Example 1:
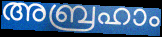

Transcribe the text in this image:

അബ്രഹാം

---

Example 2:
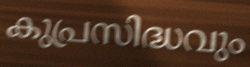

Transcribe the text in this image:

കുപ്രസിദ്ധവും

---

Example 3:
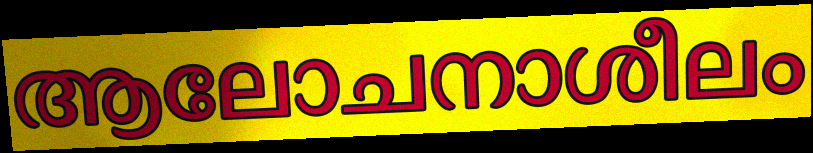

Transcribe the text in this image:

ആലോചനാശീലം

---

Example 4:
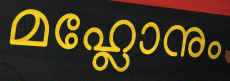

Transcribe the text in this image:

മഹ്ലോനും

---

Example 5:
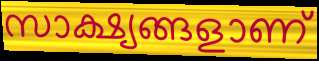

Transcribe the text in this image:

സാക്ഷ്യങ്ങളാണ്